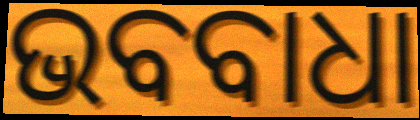
ଭବବାଧା